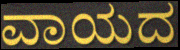
ವಾಯದ